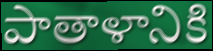
పాతాళానికి